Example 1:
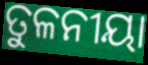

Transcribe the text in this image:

ତୁଳନୀୟା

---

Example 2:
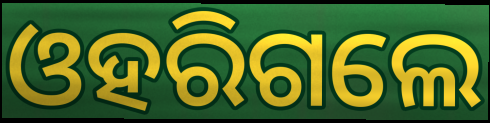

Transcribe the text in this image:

ଓହରିଗଲେ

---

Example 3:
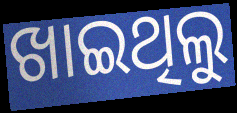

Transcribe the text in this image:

ଖାଇଥିଲୁ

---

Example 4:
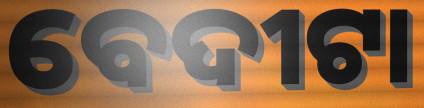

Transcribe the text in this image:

ବେଦୀଟା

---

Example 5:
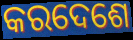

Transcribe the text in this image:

କରଦେଶେ